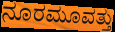
ನೂರಮೂವತ್ತು